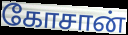
கோசான்